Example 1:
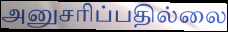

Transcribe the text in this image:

அனுசரிப்பதில்லை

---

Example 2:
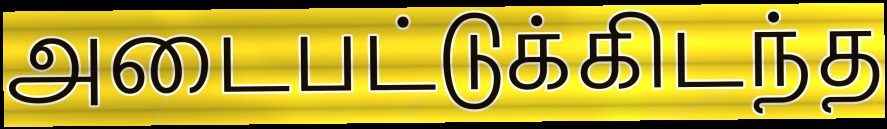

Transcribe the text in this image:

அடைபட்டுக்கிடந்த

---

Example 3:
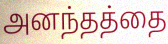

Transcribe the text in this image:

அனந்தத்தை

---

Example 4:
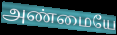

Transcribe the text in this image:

அண்மையே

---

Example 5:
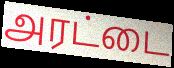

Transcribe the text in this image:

அரட்டை